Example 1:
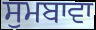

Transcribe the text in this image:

ਸੁਮਬਾਵਾ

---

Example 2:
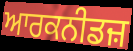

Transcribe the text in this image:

ਆਰਕਨੀਡਜ਼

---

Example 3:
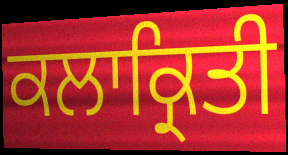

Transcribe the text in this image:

ਕਲਾਕ੍ਰਿਤੀ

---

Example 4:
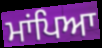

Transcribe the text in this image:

ਮਾਂਪਿਆ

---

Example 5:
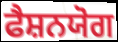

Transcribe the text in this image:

ਫੈਸ਼ਨਯੋਗ